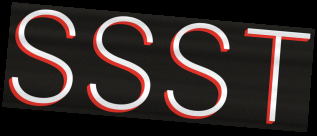
SSST